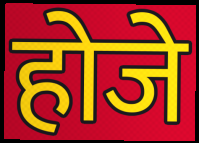
होजे